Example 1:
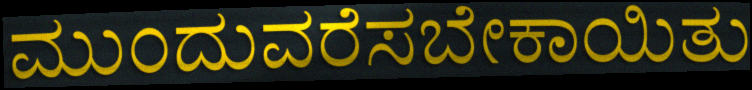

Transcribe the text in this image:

ಮುಂದುವರೆಸಬೇಕಾಯಿತು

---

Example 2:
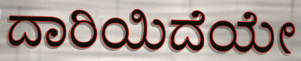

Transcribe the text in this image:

ದಾರಿಯಿದೆಯೇ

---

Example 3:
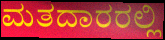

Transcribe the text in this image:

ಮತದಾರರಲ್ಲಿ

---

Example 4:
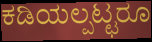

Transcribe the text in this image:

ಕಡಿಯಲ್ಪಟ್ಟರೂ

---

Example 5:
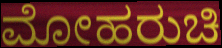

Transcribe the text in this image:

ಮೋಹರುಚಿ